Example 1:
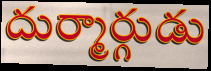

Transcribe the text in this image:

దుర్మార్గుడు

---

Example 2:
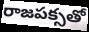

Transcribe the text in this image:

రాజపక్సతో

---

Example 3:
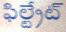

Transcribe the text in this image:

ఫిల్ట్రేట్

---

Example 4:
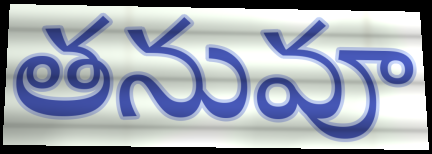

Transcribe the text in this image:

తనువూ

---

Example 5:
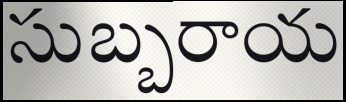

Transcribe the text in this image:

సుబ్బరాయ